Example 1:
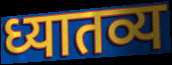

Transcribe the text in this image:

ध्यातव्य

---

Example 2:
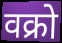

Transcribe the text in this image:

वक्रो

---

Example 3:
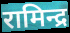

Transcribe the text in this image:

रामिन्द्र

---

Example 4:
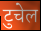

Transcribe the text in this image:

टुचेल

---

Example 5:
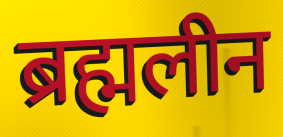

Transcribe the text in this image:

ब्रह्मलीन